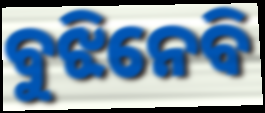
ବୁଝିନେବି